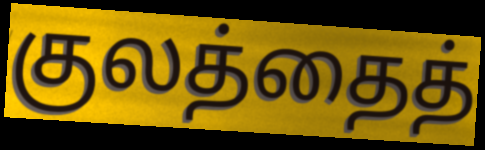
குலத்தைத்